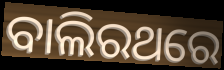
ବାଲିରଥରେ